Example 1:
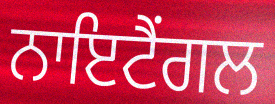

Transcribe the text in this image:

ਨਾਇਟੈਂਗਲ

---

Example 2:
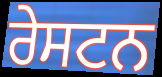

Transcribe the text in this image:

ਰੇਸਟਨ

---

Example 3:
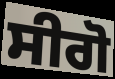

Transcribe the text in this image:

ਸੀਗੋ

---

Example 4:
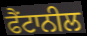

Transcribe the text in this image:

ਫੈਂਟਾਨੀਲ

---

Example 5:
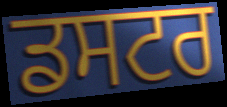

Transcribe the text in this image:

ਡਸਟਰ